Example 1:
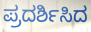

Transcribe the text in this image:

ಪ್ರದರ್ಶಿಸಿದ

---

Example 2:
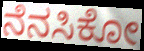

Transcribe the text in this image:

ನೆನಸಿಕೋ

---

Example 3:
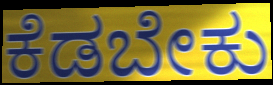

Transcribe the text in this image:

ಕೆಡಬೇಕು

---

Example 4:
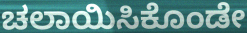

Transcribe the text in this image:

ಚಲಾಯಿಸಿಕೊಂಡೇ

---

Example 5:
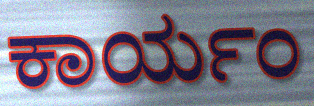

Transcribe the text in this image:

ಕಾರ್ಯಂ